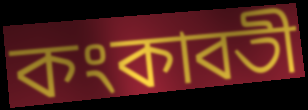
কংকাবতী